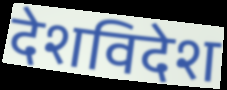
देशविदेश